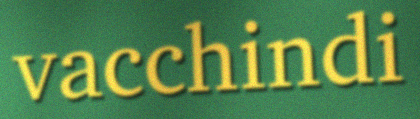
vacchindi